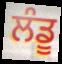
ਲੰਡੂ